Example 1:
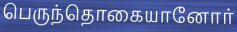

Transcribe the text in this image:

பெருந்தொகையானோர்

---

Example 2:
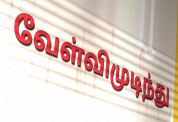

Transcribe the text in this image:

வேள்விமுடிந்து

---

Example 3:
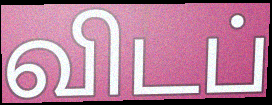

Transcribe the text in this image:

விடப்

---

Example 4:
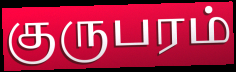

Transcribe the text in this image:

குருபரம்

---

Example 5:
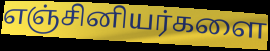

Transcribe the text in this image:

எஞ்சினியர்களை